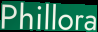
Phillora